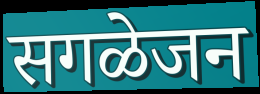
सगळेजन